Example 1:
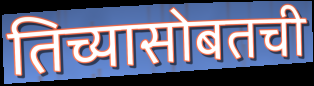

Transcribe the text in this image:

तिच्यासोबतची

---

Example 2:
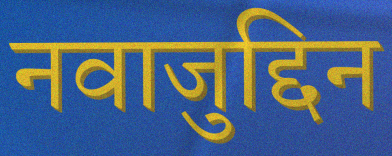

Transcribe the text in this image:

नवाजुद्दिन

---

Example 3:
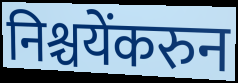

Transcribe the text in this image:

निश्चयेंकरुन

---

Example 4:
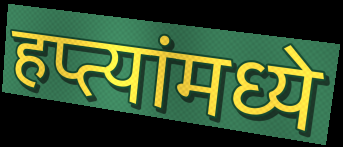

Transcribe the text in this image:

हप्त्यांमध्ये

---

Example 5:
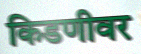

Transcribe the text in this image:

किडणीवर